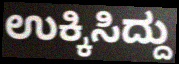
ಉಕ್ಕಿಸಿದ್ದು